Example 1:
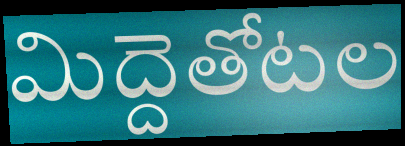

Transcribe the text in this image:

మిద్దెతోటల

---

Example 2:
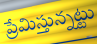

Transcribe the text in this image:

ప్రేమిస్తున్నట్టు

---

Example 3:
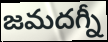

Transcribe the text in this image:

జమదగ్నీ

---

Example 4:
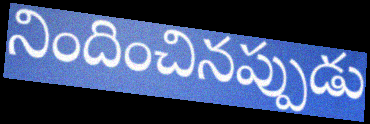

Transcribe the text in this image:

నిందించినప్పుడు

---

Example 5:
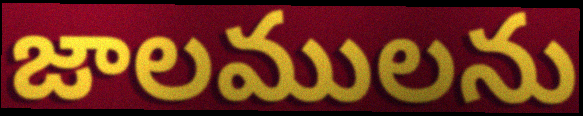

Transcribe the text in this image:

జాలములను